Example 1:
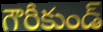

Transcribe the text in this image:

గౌరీకుండ్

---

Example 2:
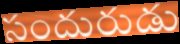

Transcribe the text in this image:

సందురుడు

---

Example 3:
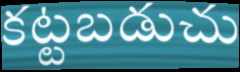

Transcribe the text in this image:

కట్టబడుచు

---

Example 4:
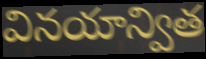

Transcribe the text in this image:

వినయాన్విత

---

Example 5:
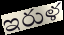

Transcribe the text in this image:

ఇరుళ